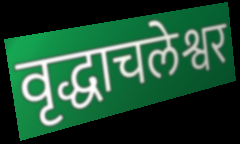
वृद्धाचलेश्वर